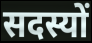
सदस्यों